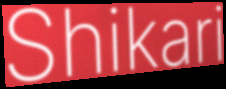
Shikari